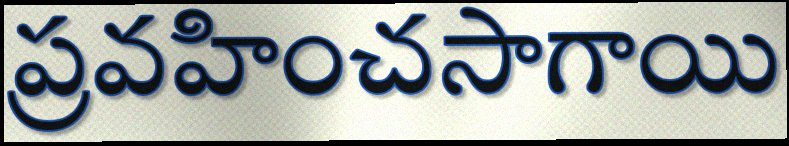
ప్రవహించసాగాయి